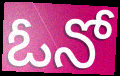
ఓనో